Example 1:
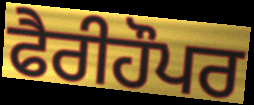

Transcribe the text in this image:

ਫੈਰੀਹੌਪਰ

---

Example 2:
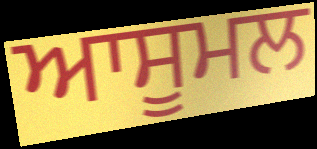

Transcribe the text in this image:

ਆਸੂਮਲ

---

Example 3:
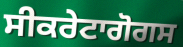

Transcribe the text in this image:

ਸੀਕਰੇਟਾਗੋਗਸ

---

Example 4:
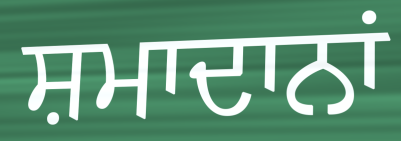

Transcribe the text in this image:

ਸ਼ਮਾਦਾਨਾਂ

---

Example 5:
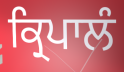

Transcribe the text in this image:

ਕ੍ਰਿਪਾਲੰ